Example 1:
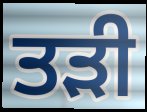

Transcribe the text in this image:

ਤੜੀ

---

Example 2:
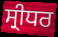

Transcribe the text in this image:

ਸ੍ਰੀਧਰ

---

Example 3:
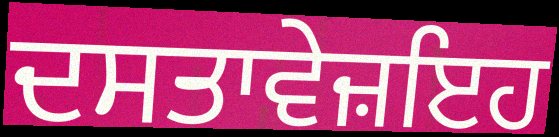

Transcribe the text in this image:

ਦਸਤਾਵੇਜ਼ਇਹ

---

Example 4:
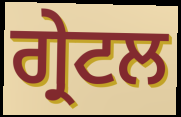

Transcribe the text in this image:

ਗ੍ਰੇਟਲ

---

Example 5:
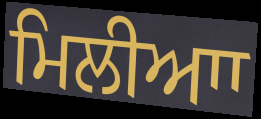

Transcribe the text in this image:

ਮਿਲੀਆਾ